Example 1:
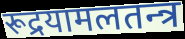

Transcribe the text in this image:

रूद्रयामलतन्त्र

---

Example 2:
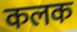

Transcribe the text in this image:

कलक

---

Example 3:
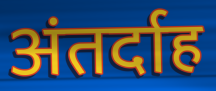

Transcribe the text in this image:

अंतर्दाह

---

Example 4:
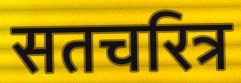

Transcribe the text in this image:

सतचरित्र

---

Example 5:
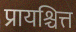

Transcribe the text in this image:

प्रायश्चित्त